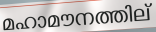
മഹാമൗനത്തില്